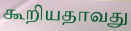
கூறியதாவது